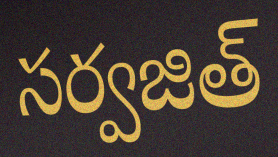
సర్వజిత్